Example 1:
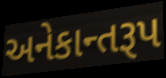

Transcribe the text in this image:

અનેકાન્તરૂપ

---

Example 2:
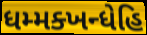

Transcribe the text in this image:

ધમ્મક્ખન્ધેહિ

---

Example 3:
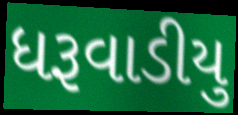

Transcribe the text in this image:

ધરૂવાડીયુ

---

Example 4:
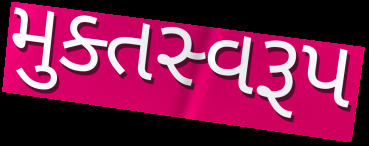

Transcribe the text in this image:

મુક્તસ્વરૂપ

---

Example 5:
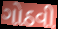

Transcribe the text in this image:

ગોઠવી